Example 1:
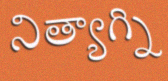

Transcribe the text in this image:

నిత్యాగ్ని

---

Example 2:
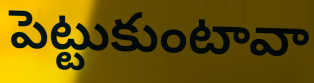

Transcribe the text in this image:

పెట్టుకుంటావా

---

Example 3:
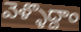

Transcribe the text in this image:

వెళ్ళొద్దాం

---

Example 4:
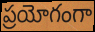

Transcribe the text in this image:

ప్రయోగంగా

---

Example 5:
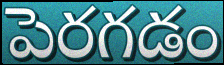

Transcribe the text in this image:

పెరగడం